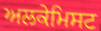
ਅਲਕੇਮਿਸਟ